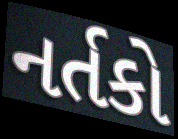
નર્તકો